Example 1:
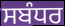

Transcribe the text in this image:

ਸਬੰਧਰ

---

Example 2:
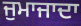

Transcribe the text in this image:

ਜੁਮਾਜਾਦਾ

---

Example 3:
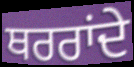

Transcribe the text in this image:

ਥਰਰਾਂਦੇ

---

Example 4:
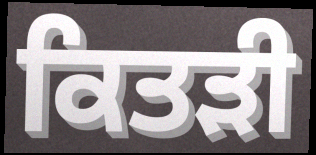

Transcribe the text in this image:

ਕਿਤੜੀ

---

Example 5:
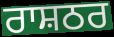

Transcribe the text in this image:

ਰਾਸ਼ਠਰ